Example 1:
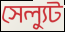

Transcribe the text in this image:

সেল্যুট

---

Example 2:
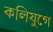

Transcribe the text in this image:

কলিযুগে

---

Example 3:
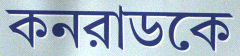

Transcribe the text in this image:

কনরাডকে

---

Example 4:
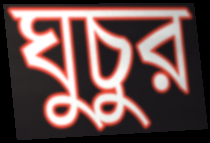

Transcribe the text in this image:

ঘুচুর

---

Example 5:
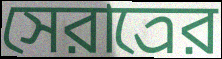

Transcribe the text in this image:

সেরাত্রের